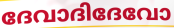
ദേവാദിദേവോ